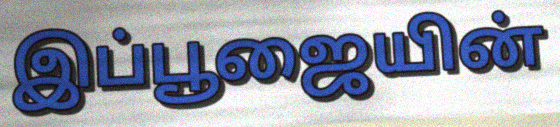
இப்பூஜையின்